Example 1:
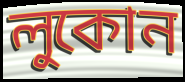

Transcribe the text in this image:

লুকোন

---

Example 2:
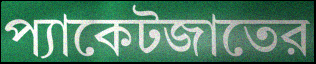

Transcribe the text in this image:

প্যাকেটজাতের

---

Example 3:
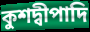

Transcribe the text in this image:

কুশদ্বীপাদি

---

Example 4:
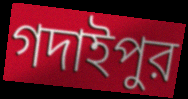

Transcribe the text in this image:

গদাইপুর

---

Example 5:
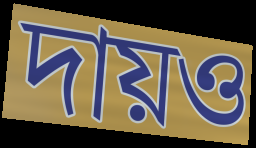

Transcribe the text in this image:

দায়ও